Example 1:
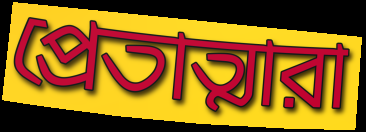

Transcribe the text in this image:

প্রেতাত্মারা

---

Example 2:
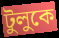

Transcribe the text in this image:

টুলুকে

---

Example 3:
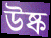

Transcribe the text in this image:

উষ্ক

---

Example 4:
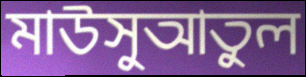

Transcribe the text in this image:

মাউসুআতুল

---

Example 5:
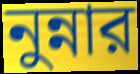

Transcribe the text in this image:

নুন্নার